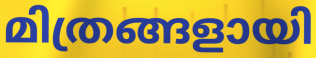
മിത്രങ്ങളായി